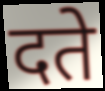
दते